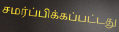
சமர்ப்பிக்கப்பட்டது